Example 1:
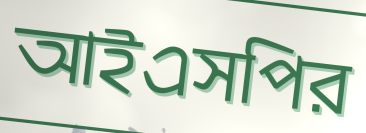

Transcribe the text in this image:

আইএসপির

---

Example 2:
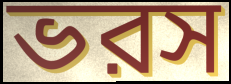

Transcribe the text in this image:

ভরস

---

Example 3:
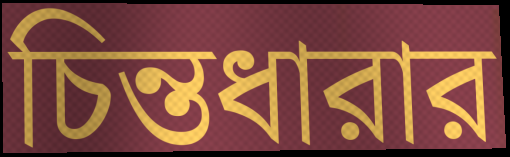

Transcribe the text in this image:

চিন্তধারার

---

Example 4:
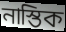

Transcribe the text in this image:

নাস্তিক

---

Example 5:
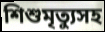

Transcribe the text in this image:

শিশুমৃত্যুসহ